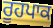
ਰੂਹਪਾਕ